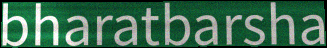
bharatbarsha